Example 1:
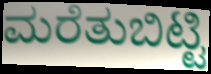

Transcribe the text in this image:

ಮರೆತುಬಿಟ್ಟಿ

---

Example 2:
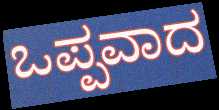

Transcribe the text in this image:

ಒಪ್ಪವಾದ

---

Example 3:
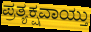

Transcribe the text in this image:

ಪ್ರತ್ಯಕ್ಷವಾಯ್ತು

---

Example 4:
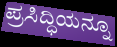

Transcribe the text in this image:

ಪ್ರಸಿದ್ಧಿಯನ್ನೂ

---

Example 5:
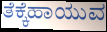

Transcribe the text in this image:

ತೆಕ್ಕೆಹಾಯುವ